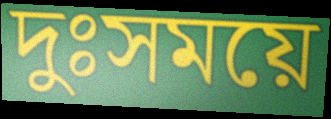
দুঃসময়ে